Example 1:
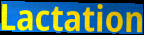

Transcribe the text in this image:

Lactation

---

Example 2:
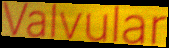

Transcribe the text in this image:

Valvular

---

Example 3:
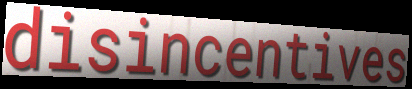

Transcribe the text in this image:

disincentives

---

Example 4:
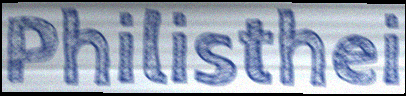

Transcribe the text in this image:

Philisthei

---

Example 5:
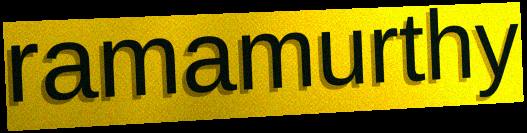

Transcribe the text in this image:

ramamurthy